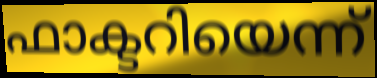
ഫാക്ടറിയെന്ന്